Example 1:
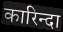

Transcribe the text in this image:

कारिन्दा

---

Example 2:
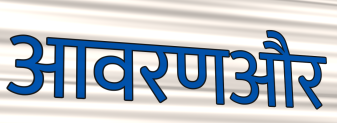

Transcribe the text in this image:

आवरणऔर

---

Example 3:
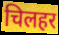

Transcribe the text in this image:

चिलहर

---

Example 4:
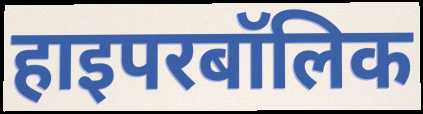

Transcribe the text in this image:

हाइपरबॉलिक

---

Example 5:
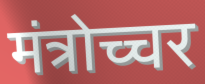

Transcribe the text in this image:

मंत्रोच्चर